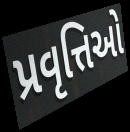
પ્રવૃત્તિઓ